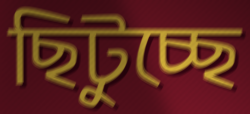
ছিটুচ্ছে